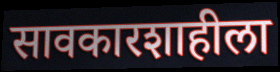
सावकारशाहीला